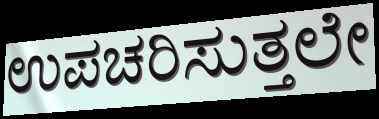
ಉಪಚರಿಸುತ್ತಲೇ